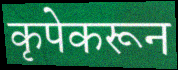
कृपेकरून